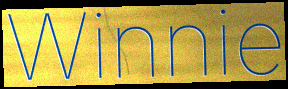
Winnie